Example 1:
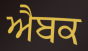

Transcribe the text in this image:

ਐਬਕ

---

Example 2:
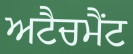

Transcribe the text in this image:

ਅਟੈਚਮੈਂਟ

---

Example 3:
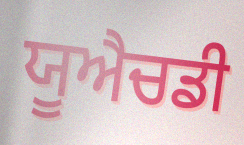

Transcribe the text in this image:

ਯੂਐਚਡੀ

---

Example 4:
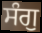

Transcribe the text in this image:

ਸੰਗੁ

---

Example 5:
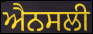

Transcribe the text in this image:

ਐਨਸਲੀ